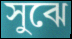
সুঝে